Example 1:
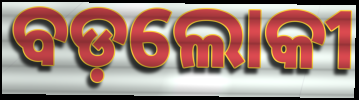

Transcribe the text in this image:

ବଡ଼ଲୋକୀ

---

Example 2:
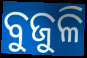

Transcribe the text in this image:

ବୁଜୁଳି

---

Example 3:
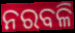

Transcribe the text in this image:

ନରବଳି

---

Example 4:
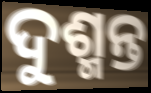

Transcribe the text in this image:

ଦୁଶ୍ମନ୍ତ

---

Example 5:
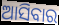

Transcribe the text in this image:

ଆସିବାର